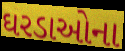
ઘરડાઓના